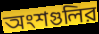
অংশগুলির